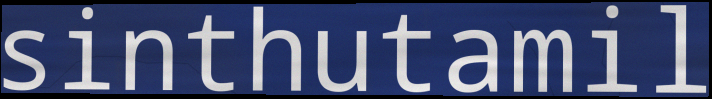
sinthutamil